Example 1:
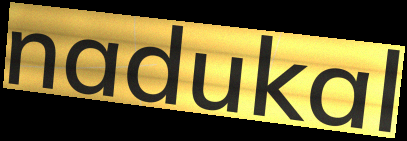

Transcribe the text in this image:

nadukal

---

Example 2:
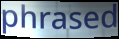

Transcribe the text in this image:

phrased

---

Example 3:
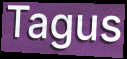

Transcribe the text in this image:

Tagus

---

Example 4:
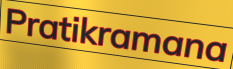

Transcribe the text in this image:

Pratikramana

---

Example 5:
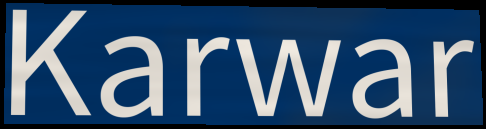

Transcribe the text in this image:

Karwar